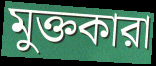
মুক্তকারা